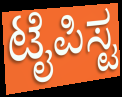
ಟೈಪಿಸ್ಟ